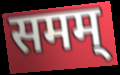
समम्